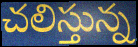
చలిస్తున్న